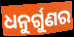
ଧନୁର୍ଗୁଣର